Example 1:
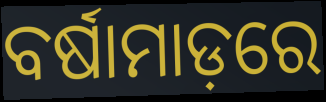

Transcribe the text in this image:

ବର୍ଷାମାଡ଼ରେ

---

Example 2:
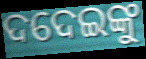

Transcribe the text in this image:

ଦଦେଇଙ୍କୁ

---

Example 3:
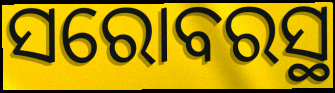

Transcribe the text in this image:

ସରୋବରସ୍ଥ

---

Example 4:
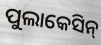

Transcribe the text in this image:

ପୁଲାକେସିନ୍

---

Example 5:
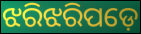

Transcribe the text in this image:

ଝରିଝରିପଡ଼େ